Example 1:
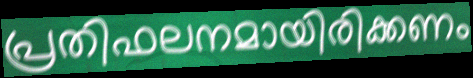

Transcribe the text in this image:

പ്രതിഫലനമായിരിക്കണം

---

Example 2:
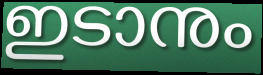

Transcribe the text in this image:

ഇടാനും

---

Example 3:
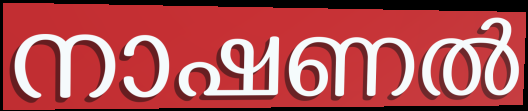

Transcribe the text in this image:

നാഷണൽ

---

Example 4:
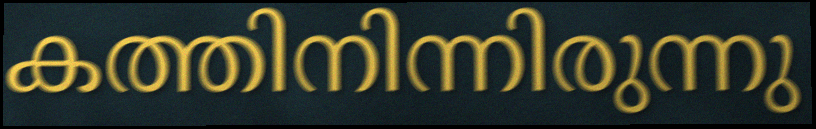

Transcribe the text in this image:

കത്തിനിന്നിരുന്നു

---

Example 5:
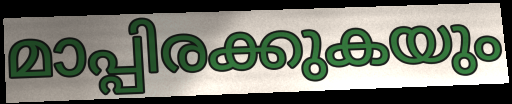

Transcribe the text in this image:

മാപ്പിരക്കുകയും